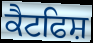
ਕੈਟਫਿਸ਼